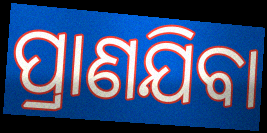
ପ୍ରାଣଯିବା